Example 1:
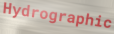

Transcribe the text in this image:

Hydrographic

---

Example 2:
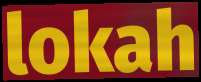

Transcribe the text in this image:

lokah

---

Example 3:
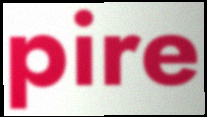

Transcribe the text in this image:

pire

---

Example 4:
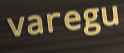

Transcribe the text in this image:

varegu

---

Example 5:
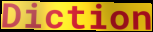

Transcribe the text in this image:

Diction